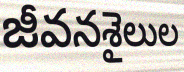
జీవనశైలుల